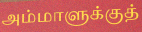
அம்மாளுக்குத்